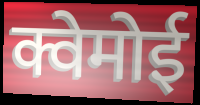
क्वेमोई